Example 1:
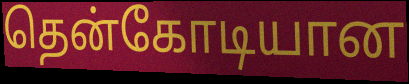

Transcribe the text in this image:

தென்கோடியான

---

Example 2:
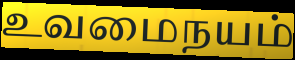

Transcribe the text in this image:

உவமைநயம்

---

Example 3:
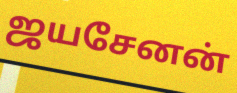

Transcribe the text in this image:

ஜயசேனன்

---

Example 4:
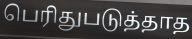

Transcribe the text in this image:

பெரிதுபடுத்தாத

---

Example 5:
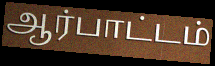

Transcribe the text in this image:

ஆர்பாட்டம்